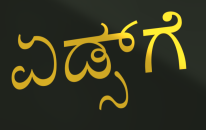
ಏಡ್ಸ್‌ಗೆ